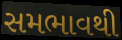
સમભાવથી